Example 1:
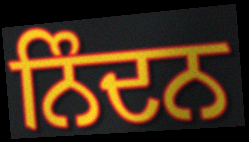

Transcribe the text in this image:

ਨਿੰਦਨ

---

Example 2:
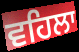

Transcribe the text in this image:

ਵਹਿਲਾ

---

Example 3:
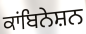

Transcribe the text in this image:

ਕਾਂਬਿਨੇਸ਼ਨ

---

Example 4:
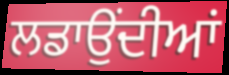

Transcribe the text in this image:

ਲਡਾਉਂਦੀਆਂ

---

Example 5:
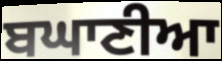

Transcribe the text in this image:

ਬਘਾਣੀਆ